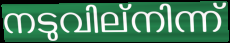
നടുവില്നിന്ന്